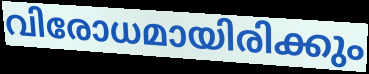
വിരോധമായിരിക്കും